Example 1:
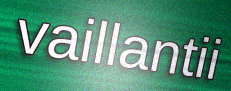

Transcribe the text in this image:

vaillantii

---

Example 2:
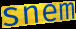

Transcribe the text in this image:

snem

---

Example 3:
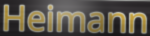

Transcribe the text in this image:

Heimann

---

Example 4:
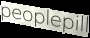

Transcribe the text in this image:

peoplepill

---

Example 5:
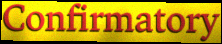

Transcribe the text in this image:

Confirmatory